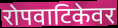
रोपवाटिकेवर